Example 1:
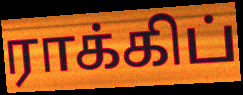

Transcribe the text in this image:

ராக்கிப்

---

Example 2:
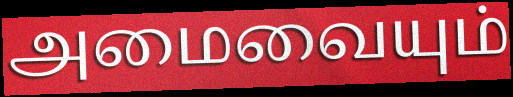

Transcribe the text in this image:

அமைவையும்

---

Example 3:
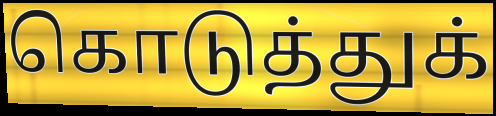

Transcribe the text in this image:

கொடுத்துக்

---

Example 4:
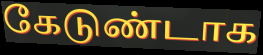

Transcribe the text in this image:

கேடுண்டாக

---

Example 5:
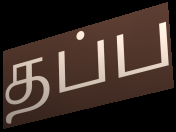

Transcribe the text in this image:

தப்ப